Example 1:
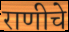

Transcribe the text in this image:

राणीचे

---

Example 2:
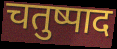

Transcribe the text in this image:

चतुष्पाद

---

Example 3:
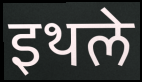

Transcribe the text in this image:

इथले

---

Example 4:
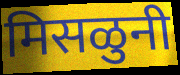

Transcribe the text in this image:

मिसळुनी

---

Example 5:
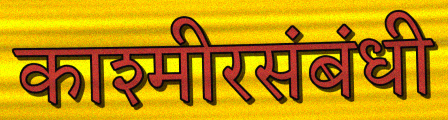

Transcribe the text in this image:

काश्मीरसंबंधी